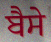
ਬੈਸੇ